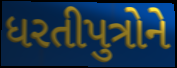
ધરતીપુત્રોને